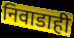
निवाडाही